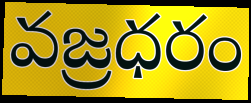
వజ్రధరం